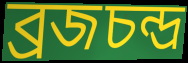
ব্রজচন্দ্র